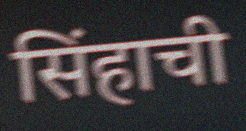
सिंहाची